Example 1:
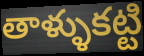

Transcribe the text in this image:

తాళ్ళుకట్టి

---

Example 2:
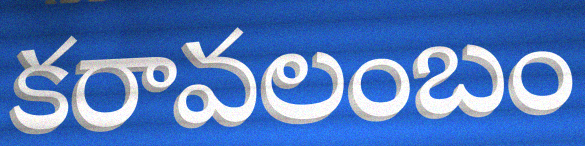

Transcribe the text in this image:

కరావలంబం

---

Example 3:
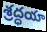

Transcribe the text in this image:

శ్రద్ధయా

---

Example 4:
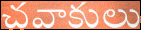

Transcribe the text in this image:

చవాకులు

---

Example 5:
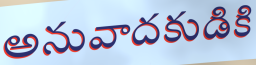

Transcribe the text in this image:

అనువాదకుడికి